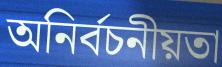
অনির্বচনীয়তা